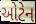
ઓટેન